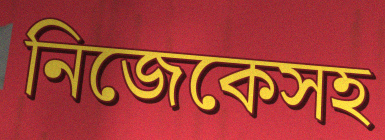
নিজেকেসহ